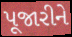
પૂજારીને